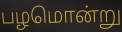
பழமொன்று